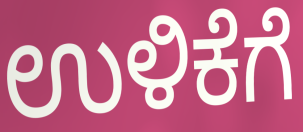
ಉಳಿಕೆಗೆ